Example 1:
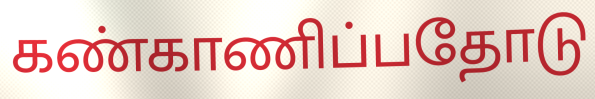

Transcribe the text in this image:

கண்காணிப்பதோடு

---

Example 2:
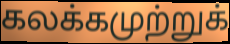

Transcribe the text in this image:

கலக்கமுற்றுக்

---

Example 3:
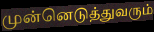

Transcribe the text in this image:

முன்னெடுத்துவரும்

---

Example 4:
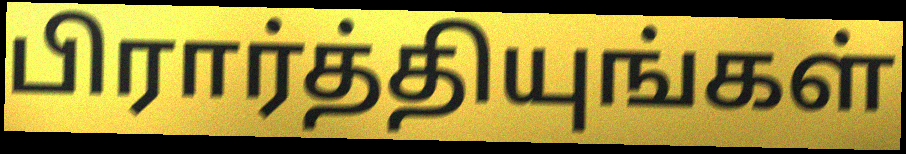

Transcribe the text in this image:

பிரார்த்தியுங்கள்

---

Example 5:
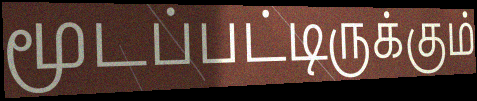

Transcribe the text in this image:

மூடப்பட்டிருக்கும்